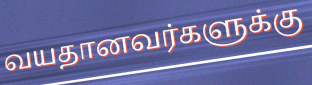
வயதானவர்களுக்கு